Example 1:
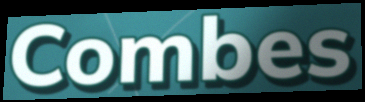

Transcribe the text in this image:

Combes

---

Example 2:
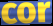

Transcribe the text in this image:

cor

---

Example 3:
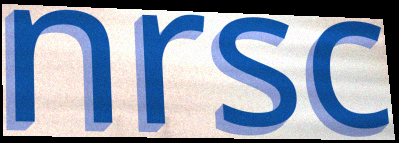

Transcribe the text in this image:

nrsc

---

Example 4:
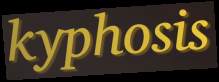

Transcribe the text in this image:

kyphosis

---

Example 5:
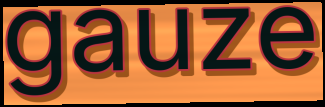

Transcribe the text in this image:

gauze